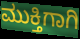
ಮುಕ್ತಿಗಾಗಿ